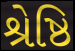
શ્રેષ્ઠિ